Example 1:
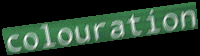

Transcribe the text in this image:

colouration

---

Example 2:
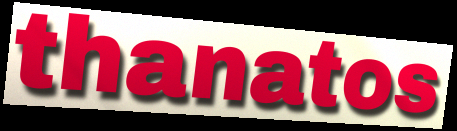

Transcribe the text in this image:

thanatos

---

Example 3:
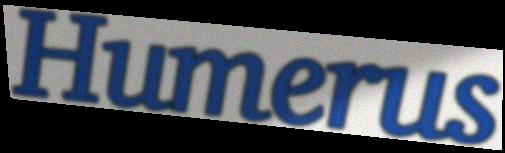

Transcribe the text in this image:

Humerus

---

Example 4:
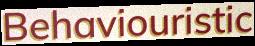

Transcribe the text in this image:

Behaviouristic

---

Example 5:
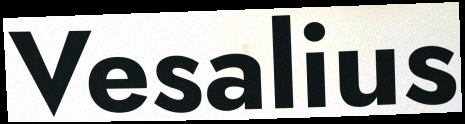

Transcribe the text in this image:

Vesalius